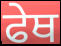
ਫੇਥ